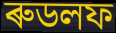
ৰুডলফ